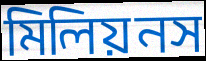
মিলিয়নস